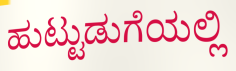
ಹುಟ್ಟುಡುಗೆಯಲ್ಲಿ